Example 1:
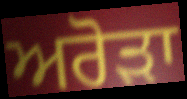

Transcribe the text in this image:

ਅਰੋੜਾ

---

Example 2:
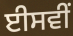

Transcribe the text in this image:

ਈਸਵੀਂ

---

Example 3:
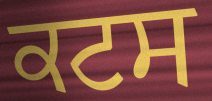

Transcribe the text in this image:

ਕਟਸ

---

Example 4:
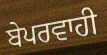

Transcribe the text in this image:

ਬੇਪਰਵਾਹੀ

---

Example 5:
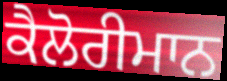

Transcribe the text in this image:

ਕੈਲੋਰੀਮਾਨ